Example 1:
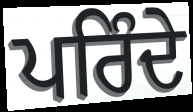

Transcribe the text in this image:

ਪਰਿੰਦੇ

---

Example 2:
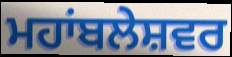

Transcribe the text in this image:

ਮਹਾਂਬਲੇਸ਼ਵਰ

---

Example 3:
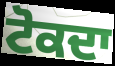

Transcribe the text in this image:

ਟੋਕਦਾ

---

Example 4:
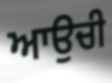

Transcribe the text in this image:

ਆਉਚੀ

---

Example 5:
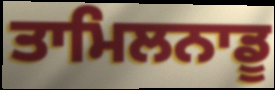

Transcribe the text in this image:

ਤਾਮਿਲਨਾਡੂ